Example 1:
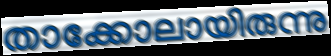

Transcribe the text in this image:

താക്കോലായിരുന്നു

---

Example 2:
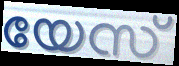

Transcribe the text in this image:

യേസ്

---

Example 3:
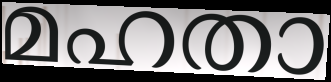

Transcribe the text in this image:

മഹതാ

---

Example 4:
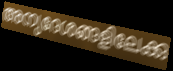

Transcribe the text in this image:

അന്യദേശങ്ങളിലേക്കു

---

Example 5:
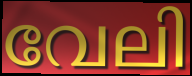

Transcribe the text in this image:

വേലി